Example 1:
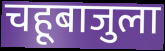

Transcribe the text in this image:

चहूबाजुला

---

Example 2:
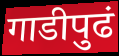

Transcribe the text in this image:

गाडीपुढं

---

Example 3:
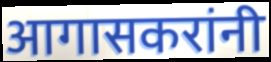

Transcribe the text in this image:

आगासकरांनी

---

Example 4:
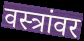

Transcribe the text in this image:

वस्त्रांवर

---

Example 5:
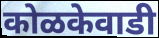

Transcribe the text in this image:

कोळकेवाडी